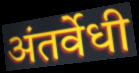
अंतर्वेधी